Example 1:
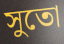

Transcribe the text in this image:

সুতো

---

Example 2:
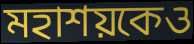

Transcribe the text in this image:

মহাশয়কেও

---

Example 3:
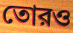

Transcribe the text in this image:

তোরও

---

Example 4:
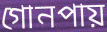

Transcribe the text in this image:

গোনপায়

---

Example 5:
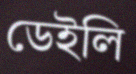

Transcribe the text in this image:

ডেইলি